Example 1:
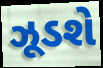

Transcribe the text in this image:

ઝૂડશે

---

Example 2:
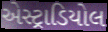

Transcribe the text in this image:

એસ્ટ્રાડિયોલ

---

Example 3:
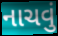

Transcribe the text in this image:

નાચવું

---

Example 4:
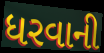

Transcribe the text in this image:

ધરવાની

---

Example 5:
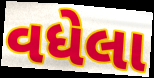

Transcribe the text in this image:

વધેલા